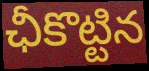
ఛీకొట్టిన